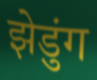
झेडुंग